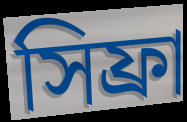
সিফ্রা